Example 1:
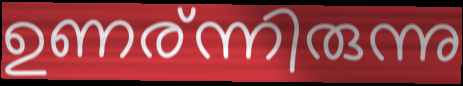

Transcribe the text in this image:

ഉണര്ന്നിരുന്നു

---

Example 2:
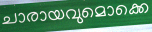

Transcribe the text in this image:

ചാരായവുമൊക്കെ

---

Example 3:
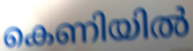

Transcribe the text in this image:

കെണിയിൽ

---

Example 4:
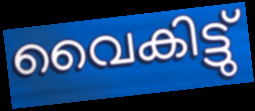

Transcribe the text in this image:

വൈകിട്ടു്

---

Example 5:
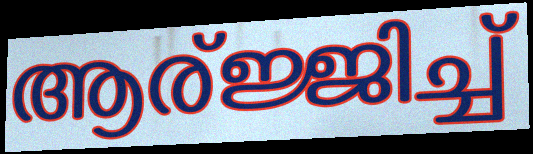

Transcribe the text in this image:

ആര്ജ്ജിച്ച്